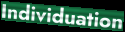
Individuation